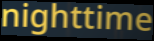
nighttime